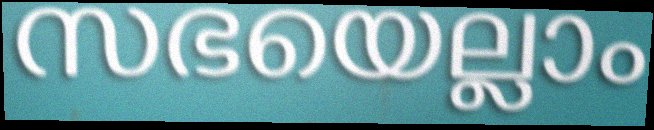
സഭയെല്ലാം